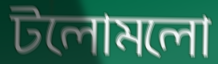
টলোমলো